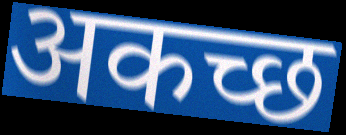
अकच्छ